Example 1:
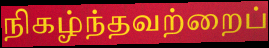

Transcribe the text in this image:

நிகழ்ந்தவற்றைப்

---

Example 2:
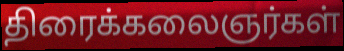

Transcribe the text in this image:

திரைக்கலைஞர்கள்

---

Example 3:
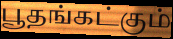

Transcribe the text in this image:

பூதங்கட்கும்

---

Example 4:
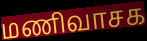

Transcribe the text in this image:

மணிவாசக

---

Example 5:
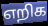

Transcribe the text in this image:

எறிக